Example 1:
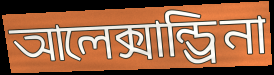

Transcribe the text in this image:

আলেক্সান্ড্রিনা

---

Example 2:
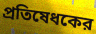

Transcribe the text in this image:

প্রতিষেধকের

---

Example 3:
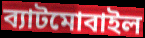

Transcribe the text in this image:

ব্যাটমোবাইল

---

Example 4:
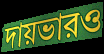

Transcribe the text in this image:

দায়ভারও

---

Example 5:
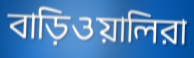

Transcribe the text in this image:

বাড়িওয়ালিরা